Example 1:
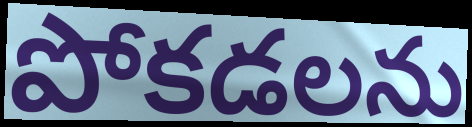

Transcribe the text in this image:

పోకడలను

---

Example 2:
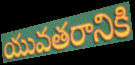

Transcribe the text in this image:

యువతరానికి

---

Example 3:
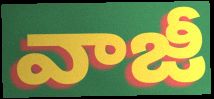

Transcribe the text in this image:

వాజీ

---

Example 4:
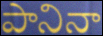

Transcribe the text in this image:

పానినా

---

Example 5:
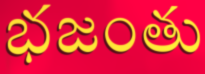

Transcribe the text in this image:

భజంతు